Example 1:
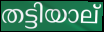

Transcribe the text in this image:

തട്ടിയാല്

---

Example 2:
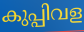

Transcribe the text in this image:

കുപ്പിവള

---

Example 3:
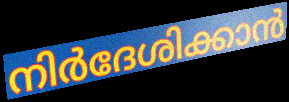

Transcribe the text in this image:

നിർദേശിക്കാൻ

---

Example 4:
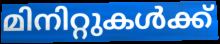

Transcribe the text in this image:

മിനിറ്റുകൾക്ക്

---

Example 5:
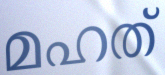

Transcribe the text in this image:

മഹത്